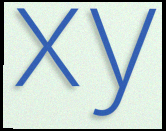
xy